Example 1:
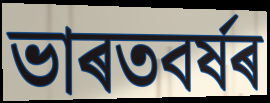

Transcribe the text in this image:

ভাৰতবৰ্ষৰ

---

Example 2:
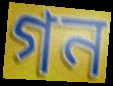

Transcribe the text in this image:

গন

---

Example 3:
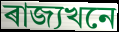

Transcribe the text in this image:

ৰাজ্যখনে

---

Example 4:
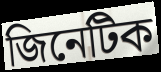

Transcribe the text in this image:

জিনেটিক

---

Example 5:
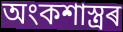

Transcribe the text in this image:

অংকশাস্ত্ৰৰ